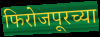
फिरोजपूरच्या